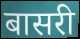
बासरी